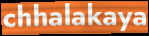
chhalakaya